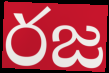
రజ